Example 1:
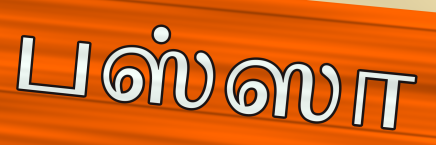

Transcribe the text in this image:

பஸ்ஸா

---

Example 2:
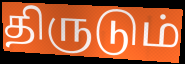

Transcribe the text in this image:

திருடும்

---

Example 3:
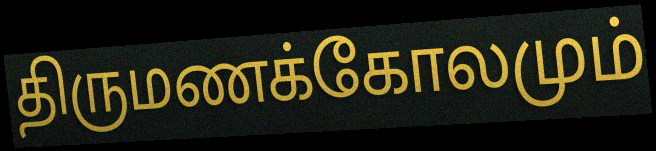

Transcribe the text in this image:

திருமணக்கோலமும்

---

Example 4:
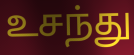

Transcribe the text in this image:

உசந்து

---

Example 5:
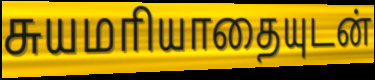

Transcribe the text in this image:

சுயமரியாதையுடன்